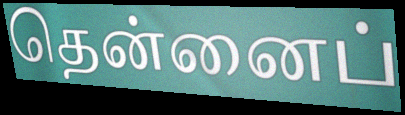
தென்னைப்